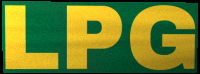
LPG